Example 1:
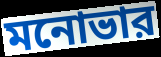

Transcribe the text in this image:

মনোভার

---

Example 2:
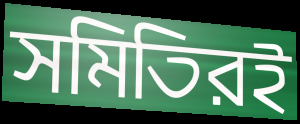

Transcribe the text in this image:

সমিতিরই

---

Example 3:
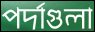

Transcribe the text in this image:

পর্দাগুলা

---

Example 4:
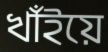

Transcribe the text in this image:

খাঁইয়ে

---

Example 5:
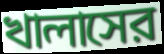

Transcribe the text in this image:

খালাসের